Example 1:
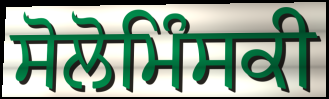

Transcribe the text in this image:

ਸੋਲੋਮਿੰਸਕੀ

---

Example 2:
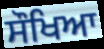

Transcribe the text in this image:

ਸੌਖਿਆ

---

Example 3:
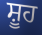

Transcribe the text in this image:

ਸ਼ੂਹ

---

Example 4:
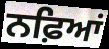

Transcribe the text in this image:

ਨਫ਼ਿਆਂ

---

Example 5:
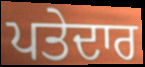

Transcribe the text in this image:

ਪਤੇਦਾਰ